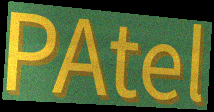
PAtel